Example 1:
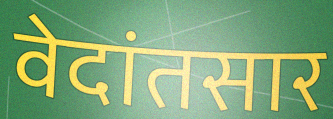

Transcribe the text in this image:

वेदांतसार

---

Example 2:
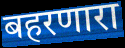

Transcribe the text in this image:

बहरणारा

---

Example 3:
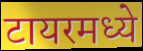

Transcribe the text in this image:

टायरमध्ये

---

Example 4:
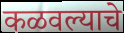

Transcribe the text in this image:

कळवल्याचे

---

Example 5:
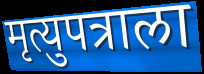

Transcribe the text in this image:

मृत्युपत्राला